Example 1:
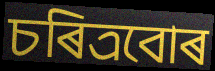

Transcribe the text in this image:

চৰিত্ৰবোৰ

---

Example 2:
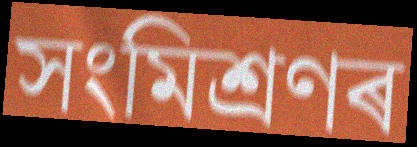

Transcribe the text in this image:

সংমিশ্ৰণৰ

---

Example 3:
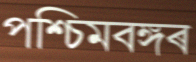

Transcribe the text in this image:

পশ্চিমবঙ্গৰ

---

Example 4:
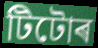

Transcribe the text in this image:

টিটোৰ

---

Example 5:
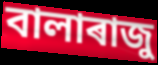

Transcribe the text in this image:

বালাৰাজু